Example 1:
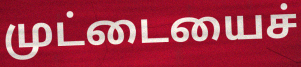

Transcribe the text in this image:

முட்டையைச்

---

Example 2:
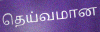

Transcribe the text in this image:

தெய்வமான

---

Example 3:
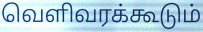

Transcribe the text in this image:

வெளிவரக்கூடும்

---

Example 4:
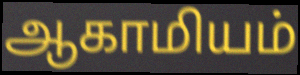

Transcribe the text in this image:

ஆகாமியம்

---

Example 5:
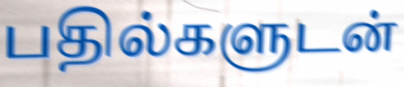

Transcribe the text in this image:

பதில்களுடன்